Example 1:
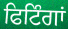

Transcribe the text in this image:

ਫਿਟਿੰਗਾਂ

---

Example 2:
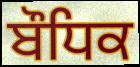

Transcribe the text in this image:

ਬੌਧਿਕ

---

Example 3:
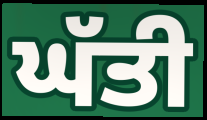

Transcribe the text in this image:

ਘੱਤੀ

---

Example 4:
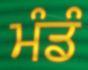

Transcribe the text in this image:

ਮੰਡੰ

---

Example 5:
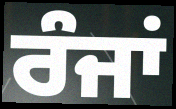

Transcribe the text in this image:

ਰੰਜਾਂ